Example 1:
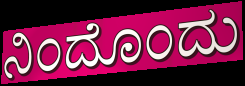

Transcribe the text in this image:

ನಿಂದೊಂದು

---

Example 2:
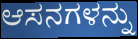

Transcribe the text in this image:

ಆಸನಗಳನ್ನು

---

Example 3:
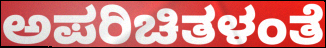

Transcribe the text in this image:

ಅಪರಿಚಿತಳಂತೆ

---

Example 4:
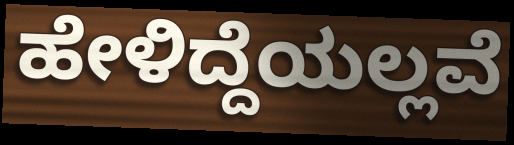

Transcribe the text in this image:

ಹೇಳಿದ್ದೆಯಲ್ಲವೆ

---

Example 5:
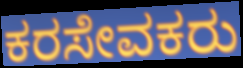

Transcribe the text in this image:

ಕರಸೇವಕರು